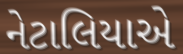
નેટાલિયાએ